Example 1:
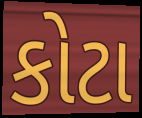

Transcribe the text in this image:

કોટા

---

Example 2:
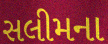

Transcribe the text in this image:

સલીમના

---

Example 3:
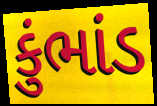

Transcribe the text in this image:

કુંભાંડ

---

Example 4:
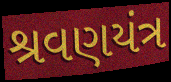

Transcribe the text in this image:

શ્રવણયંત્ર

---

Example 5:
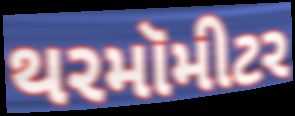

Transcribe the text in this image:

થરમૉમીટર